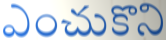
ఎంచుకొని